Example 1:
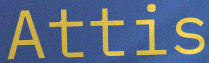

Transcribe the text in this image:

Attis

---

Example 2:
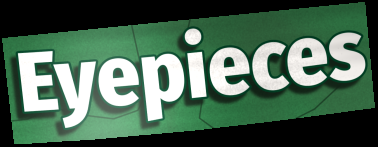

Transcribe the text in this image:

Eyepieces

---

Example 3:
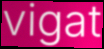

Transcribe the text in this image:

vigat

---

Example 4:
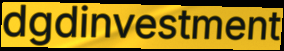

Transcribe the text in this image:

dgdinvestment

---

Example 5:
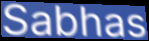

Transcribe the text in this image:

Sabhas